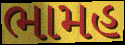
ભામહ